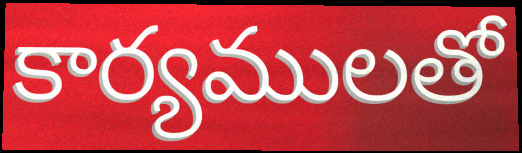
కార్యములతో